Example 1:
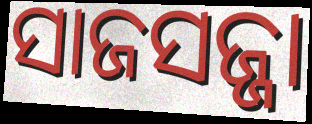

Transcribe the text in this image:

ସାଜସଜ୍ଜା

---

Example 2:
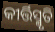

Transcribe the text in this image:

କୀର୍ତ୍ତିସ୍ମୃତି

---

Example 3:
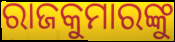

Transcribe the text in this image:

ରାଜକୁମାରଙ୍କୁ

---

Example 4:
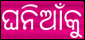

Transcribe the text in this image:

ଘନିଆଁକୁ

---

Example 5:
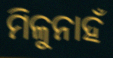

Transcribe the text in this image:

ମିଳୁନାହଁ